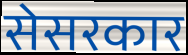
सेसरकार